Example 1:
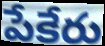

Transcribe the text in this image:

పేకేరు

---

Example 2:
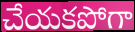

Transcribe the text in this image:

చేయకపోగా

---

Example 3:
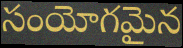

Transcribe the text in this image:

సంయోగమైన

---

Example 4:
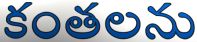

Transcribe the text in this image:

కంతలను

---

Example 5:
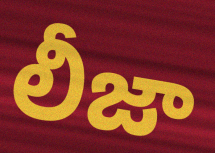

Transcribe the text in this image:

లీజా